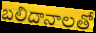
బలిదానాలతో